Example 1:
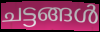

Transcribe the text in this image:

ചട്ടങ്ങൾ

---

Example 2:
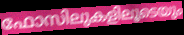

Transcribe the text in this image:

ഫോസിലുകളിലൂടെയും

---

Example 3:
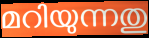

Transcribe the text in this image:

മറിയുന്നതു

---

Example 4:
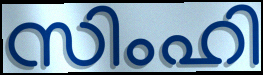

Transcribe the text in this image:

സിംഹി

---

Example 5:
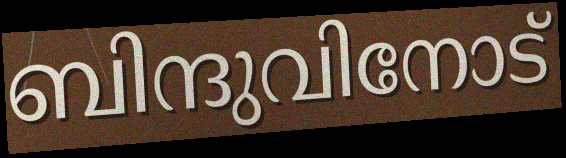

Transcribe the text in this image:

ബിന്ദുവിനോട്